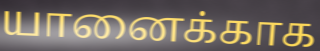
யானைக்காக